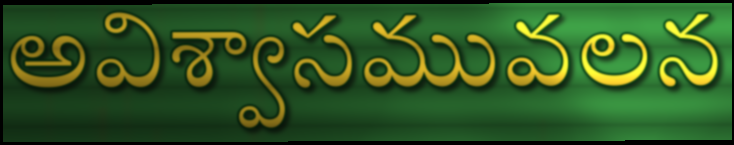
అవిశ్వాసమువలన